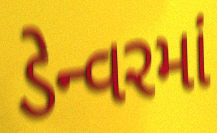
ડેન્વરમાં